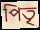
পিতৃ